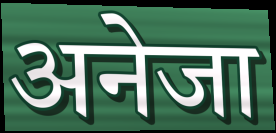
अनेजा